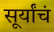
सूर्यांचं